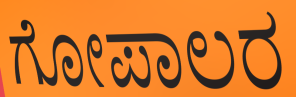
ಗೋಪಾಲರ